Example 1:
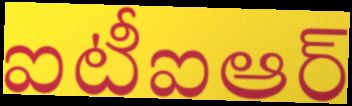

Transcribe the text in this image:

ఐటీఐఆర్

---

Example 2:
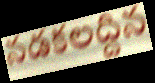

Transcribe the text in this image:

నడకలద్దిన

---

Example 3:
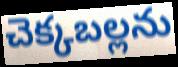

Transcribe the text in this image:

చెక్కబల్లను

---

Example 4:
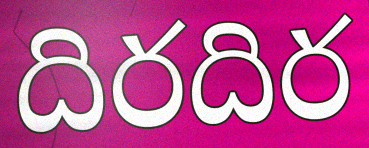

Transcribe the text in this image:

దిరదిర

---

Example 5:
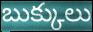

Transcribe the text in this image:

బుక్కులు